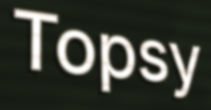
Topsy